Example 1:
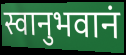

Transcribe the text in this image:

स्वानुभवानं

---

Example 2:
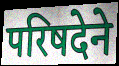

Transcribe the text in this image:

परिषदेने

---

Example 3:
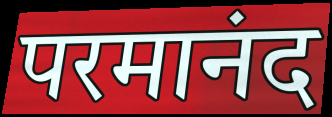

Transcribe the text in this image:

परमानंद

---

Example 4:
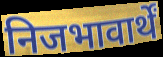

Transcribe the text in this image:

निजभावार्थें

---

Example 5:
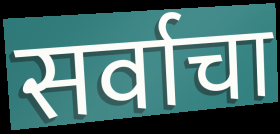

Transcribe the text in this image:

सर्वाचा